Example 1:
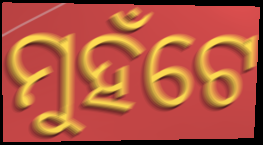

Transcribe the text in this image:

ମୁହଁଟେ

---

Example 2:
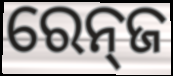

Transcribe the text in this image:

ରେନ୍‍ଜ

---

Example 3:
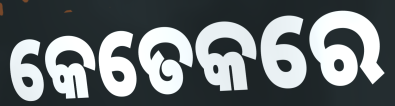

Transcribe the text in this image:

କେତେକରେ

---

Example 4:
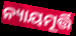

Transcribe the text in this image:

ନ୍ୟାୟମୂର୍ତ୍ତି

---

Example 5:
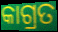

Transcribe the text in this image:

କାଗ୍ରତ